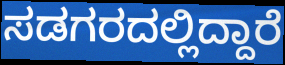
ಸಡಗರದಲ್ಲಿದ್ದಾರೆ